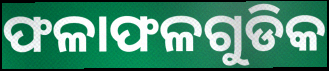
ଫଳାଫଳଗୁଡିକ